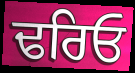
ਢਰਿਓ